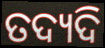
ତଦ୍ୟଦି